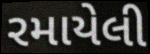
રમાયેલી